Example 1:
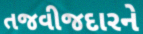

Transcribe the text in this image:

તજવીજદારને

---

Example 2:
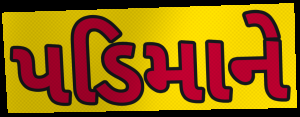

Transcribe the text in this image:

પડિમાને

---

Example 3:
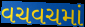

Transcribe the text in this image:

વચવચમાં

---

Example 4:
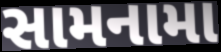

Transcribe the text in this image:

સામનામા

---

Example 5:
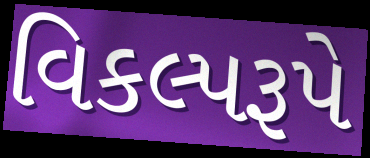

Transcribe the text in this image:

વિકલ્પરૂપે